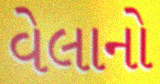
વેલાનો